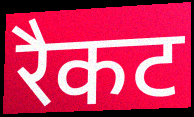
रैकट